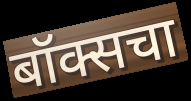
बॉक्सचा